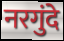
नरगुंदे